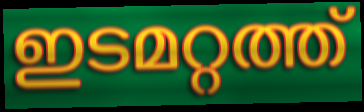
ഇടമറ്റത്ത്